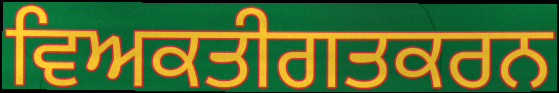
ਵਿਅਕਤੀਗਤਕਰਨ